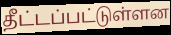
தீட்டப்பட்டுள்ளன